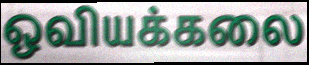
ஒவியக்கலை